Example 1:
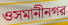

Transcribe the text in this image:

ওসমানীনগর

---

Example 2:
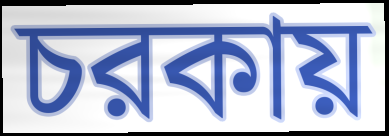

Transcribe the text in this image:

চরকায়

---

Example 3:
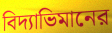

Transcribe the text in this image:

বিদ্যাভিমানের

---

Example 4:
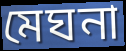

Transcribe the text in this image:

মেঘনা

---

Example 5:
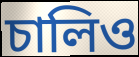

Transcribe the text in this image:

চালিও